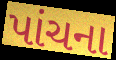
પાંચના